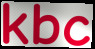
kbc